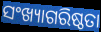
ସଂଖ୍ୟାଗରିଷ୍ଠତା